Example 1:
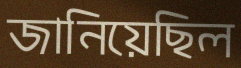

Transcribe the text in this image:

জানিয়েছিল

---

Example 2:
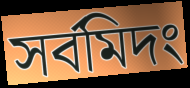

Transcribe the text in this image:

সর্বমিদং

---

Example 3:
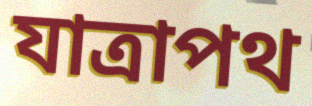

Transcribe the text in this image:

যাত্রাপথ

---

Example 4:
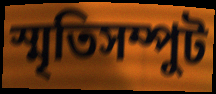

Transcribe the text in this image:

স্মৃতিসম্পুট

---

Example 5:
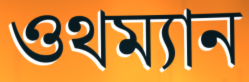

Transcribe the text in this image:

ওথম্যান